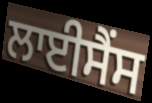
ਲਾਈਸੈਂਸ